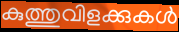
കുത്തുവിളക്കുകൾ